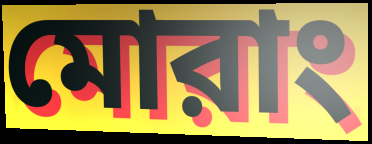
মোরাং